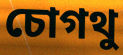
চোগথু